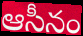
ఆసీనం